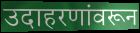
उदाहरणांवरून